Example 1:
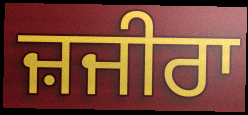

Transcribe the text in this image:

ਜ਼ਜੀਰਾ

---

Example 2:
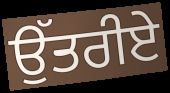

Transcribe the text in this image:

ਉੱਤਰੀਏ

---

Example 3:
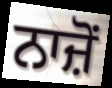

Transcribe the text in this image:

ਨਾਜ਼ੋਂ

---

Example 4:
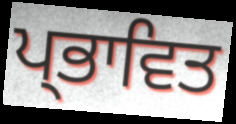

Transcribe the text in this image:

ਪ੍ਭਾਵਿਤ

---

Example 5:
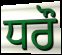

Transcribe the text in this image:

ਧਰੌ